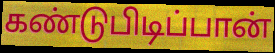
கண்டுபிடிப்பான்